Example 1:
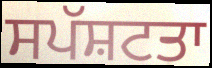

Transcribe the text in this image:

ਸਪੱਸ਼ਟਤਾ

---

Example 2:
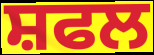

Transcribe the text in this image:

ਸ਼ਫਲ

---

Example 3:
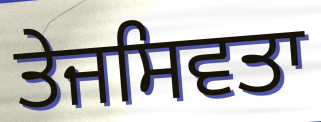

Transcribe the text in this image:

ਤੇਜਸਿਵਤਾ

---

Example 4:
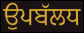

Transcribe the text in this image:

ਉਪਬੱਲਧ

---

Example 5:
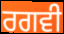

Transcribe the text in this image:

ਰਗਵੀ